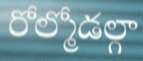
రోల్మోడల్గా